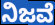
ನಿಜವೆ